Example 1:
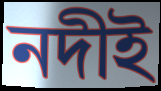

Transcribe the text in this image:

নদীই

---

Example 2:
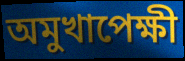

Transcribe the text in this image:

অমুখাপেক্ষী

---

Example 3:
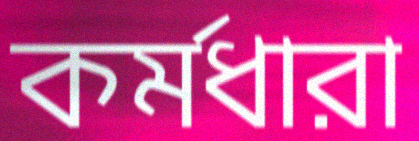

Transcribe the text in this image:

কর্মধারা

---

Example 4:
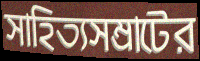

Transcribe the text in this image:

সাহিত্যসম্রাটের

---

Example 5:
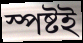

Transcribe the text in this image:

স্পষ্টই